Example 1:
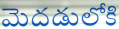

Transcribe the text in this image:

మెదడులోకి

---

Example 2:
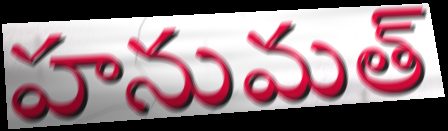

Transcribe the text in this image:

హనుమత్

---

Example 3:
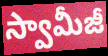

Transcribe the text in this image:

స్వామీజీ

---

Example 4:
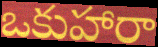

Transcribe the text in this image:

ఒకుహారా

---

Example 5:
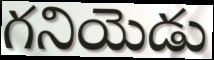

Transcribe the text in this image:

గనియెడు